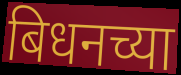
बिधनच्या